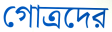
গোত্রদের